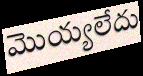
మొయ్యలేదు